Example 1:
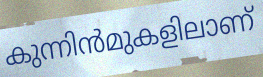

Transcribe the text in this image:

കുന്നിൻമുകളിലാണ്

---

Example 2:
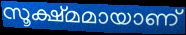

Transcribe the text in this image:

സൂക്ഷ്മമായാണ്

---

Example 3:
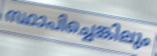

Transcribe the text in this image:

സ്ഥാപിച്ചെങ്കിലും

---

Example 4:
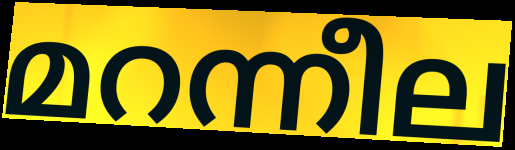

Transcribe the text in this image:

മറന്നീല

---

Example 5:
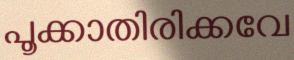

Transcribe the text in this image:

പൂക്കാതിരിക്കവേ